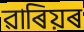
ৱাৰিয়ৰ